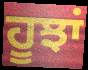
ਹੂਝਾਂ